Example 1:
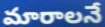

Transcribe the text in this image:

మారాలనే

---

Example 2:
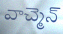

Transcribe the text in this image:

వాచ్మెన్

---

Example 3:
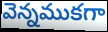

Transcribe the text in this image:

వెన్నముకగా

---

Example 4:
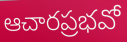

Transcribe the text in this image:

ఆచారప్రభవో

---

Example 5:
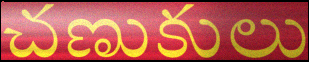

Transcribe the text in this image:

చణుకులు